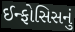
ઈન્ફોસિસનું